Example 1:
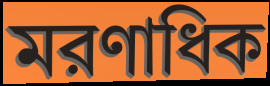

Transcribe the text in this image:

মরণাধিক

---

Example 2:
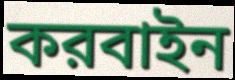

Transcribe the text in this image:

করবাইন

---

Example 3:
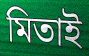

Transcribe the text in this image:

মিতাই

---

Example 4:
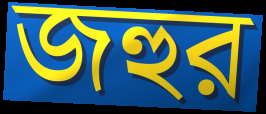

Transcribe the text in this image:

জহুর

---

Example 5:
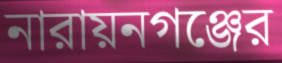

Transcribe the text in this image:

নারায়নগঞ্জের